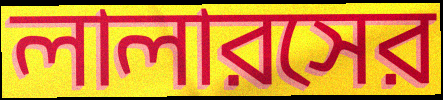
লালারসের